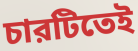
চারটিতেই